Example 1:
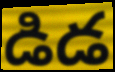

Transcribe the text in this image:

డిడ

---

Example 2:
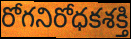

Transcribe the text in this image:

రోగనిరోధకశక్తి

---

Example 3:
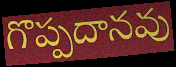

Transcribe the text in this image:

గొప్పదానవు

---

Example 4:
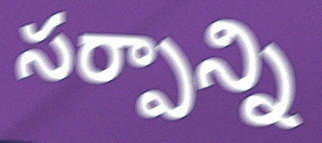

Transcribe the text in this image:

సర్పాన్ని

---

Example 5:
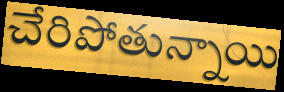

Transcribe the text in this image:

చేరిపోతున్నాయి